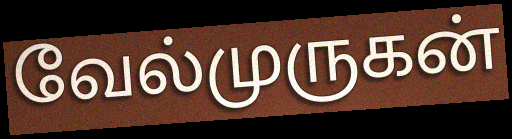
வேல்முருகன்